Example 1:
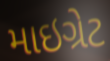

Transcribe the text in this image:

માઇગ્રેટ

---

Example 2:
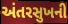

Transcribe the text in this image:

અંતરસુખની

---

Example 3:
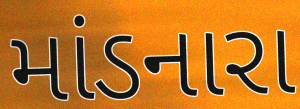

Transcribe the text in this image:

માંડનારા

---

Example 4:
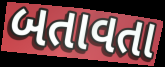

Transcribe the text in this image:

બતાવતા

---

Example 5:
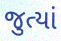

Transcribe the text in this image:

જુત્યાં